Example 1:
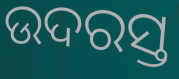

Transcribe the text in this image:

ଉଦରସ୍ତ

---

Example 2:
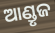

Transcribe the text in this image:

ଆଣ୍ଡୃଜ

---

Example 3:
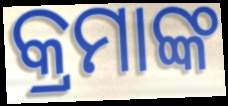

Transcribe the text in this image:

କ୍ରମାଙ୍କ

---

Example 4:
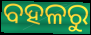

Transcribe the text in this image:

ବହଳରୁ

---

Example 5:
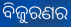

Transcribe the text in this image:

ବିଜୁରଣର